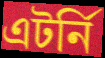
এটর্নি